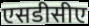
एसडीसीए